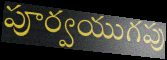
పూర్వయుగపు